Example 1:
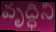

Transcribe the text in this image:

వృద్ధిని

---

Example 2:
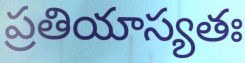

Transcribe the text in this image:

ప్రతియాస్యతః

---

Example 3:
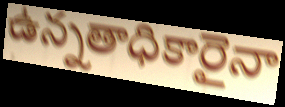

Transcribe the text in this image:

ఉన్నతాధికారైనా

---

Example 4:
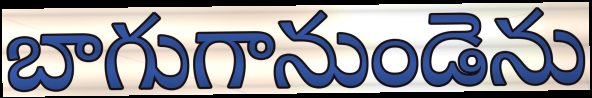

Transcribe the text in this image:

బాగుగానుండెను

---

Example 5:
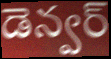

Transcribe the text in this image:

డెన్వర్